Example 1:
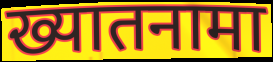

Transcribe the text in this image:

ख्यातनामा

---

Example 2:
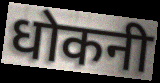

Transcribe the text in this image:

धोकनी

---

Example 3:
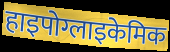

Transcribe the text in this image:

हाइपोग्लाइकेमिक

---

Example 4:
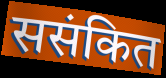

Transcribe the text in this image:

ससंकित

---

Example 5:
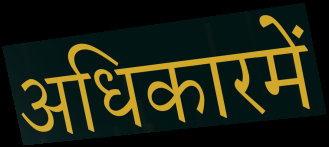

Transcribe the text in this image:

अधिकारमें